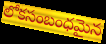
లోకసంబంధమైన